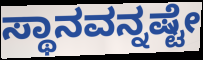
ಸ್ಥಾನವನ್ನಷ್ಟೇ